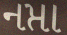
નપ્તા